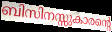
ബിസിനസ്സുകാരന്റെ